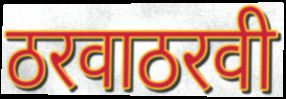
ठरवाठरवी